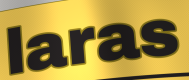
laras